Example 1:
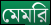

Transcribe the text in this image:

মেমরি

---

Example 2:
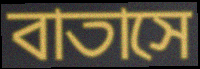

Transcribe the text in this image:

বাতাসে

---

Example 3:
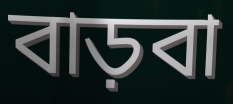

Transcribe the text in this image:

বাড়বা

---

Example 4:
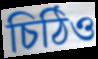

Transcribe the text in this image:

চিঠিও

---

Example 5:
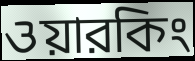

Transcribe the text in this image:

ওয়ারকিং